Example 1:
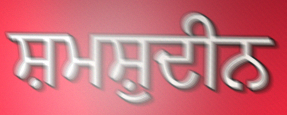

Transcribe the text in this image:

ਸ਼ਮਸ਼ੁਦੀਨ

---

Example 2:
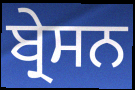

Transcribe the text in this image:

ਬ੍ਰੇਸਨ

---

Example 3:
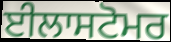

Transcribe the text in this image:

ਈਲਾਸਟੋਮਰ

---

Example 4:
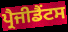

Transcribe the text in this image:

ਪ੍ਰੈਜੀਡੈਂਟਸ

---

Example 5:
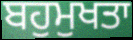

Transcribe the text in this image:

ਬਹੁਮੁਖਤਾ